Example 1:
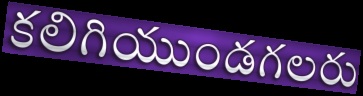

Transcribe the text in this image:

కలిగియుండగలరు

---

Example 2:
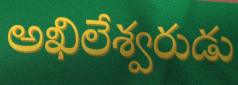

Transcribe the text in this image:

అఖిలేశ్వరుడు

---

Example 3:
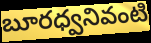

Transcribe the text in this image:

బూరధ్వనివంటి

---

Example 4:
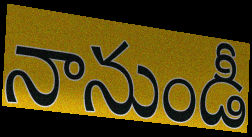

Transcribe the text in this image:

నానుండీ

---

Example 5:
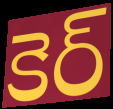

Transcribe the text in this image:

కెర్